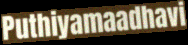
Puthiyamaadhavi